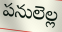
పనులెల్ల